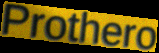
Prothero